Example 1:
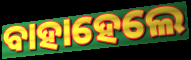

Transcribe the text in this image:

ବାହାହେଲେ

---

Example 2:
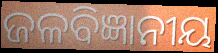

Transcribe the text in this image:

ଜଳବିଜ୍ଞାନୀୟ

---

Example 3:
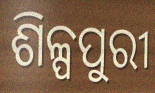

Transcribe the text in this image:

ଶିଳ୍ପପୁରୀ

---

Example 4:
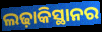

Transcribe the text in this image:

ଲଢ଼ାକିସ୍ଥାନର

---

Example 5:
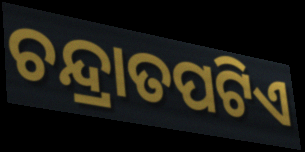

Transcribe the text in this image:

ଚନ୍ଦ୍ରାତପଟିଏ